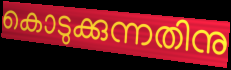
കൊടുക്കുന്നതിനു